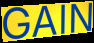
GAIN